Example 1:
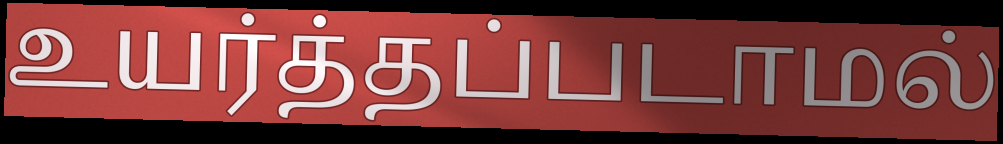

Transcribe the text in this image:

உயர்த்தப்படாமல்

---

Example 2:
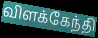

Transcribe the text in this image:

விளக்கேந்தி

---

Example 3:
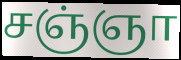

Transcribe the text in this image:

சஞ்ஞா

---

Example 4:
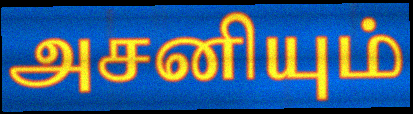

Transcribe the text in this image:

அசனியும்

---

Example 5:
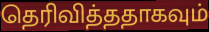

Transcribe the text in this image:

தெரிவித்ததாகவும்